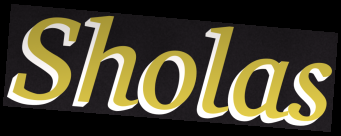
Sholas